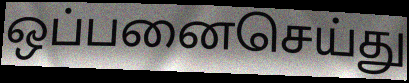
ஒப்பனைசெய்து